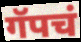
गॅपचं